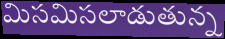
మిసమిసలాడుతున్న